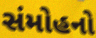
સંમોહનો